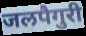
जलपैगुरी